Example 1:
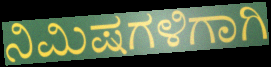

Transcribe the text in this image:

ನಿಮಿಷಗಳಿಗಾಗಿ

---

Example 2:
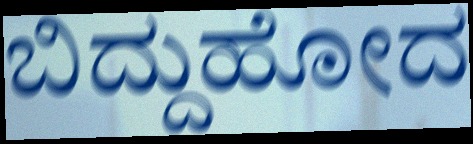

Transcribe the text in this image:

ಬಿದ್ದುಹೋದ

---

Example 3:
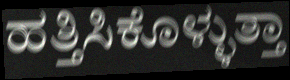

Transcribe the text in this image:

ಹತ್ತಿಸಿಕೊಳ್ಳುತ್ತಾ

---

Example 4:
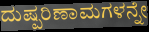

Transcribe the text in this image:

ದುಷ್ಪರಿಣಾಮಗಳನ್ನೇ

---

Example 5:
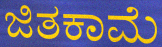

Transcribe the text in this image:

ಜಿತಕಾಮೆ